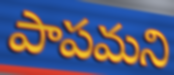
పాపమని